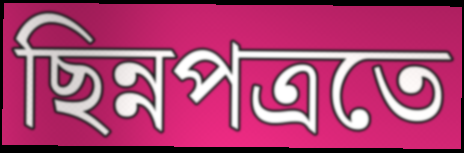
ছিন্নপত্রতে